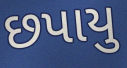
છપાયુ